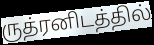
ருத்ரனிடத்தில்